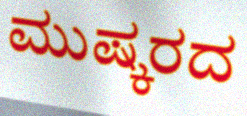
ಮುಷ್ಕರದ